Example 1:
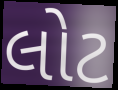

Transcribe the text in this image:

લોટ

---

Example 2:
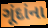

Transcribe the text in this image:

ગૂંદાંના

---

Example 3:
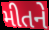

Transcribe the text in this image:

મીતને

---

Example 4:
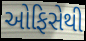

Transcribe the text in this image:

ઓફિસેથી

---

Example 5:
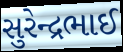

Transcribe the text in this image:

સુરેન્દ્રભાઈ